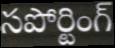
సపోర్టింగ్